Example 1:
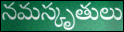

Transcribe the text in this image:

నమస్కృతులు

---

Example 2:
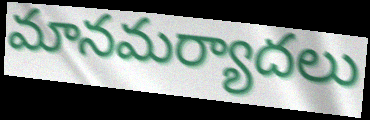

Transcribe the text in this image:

మానమర్యాదలు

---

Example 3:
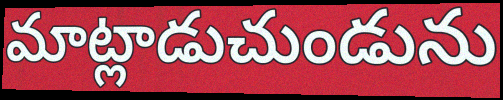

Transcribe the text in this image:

మాట్లాడుచుండును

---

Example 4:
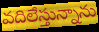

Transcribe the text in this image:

వదిలేస్తున్నాను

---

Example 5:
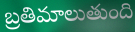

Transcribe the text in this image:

బ్రతిమాలుతుంది